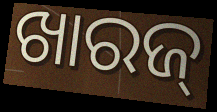
ଖାରଜ୍